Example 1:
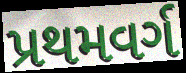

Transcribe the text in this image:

પ્રથમવર્ગ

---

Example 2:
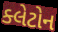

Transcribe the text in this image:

ક્લેટોન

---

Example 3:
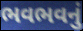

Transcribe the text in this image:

ભવભવનું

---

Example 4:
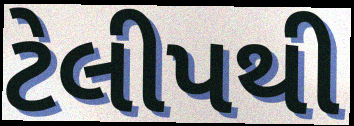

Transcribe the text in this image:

ટેલીપથી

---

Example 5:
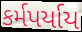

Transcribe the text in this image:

કર્મપર્યાય